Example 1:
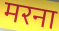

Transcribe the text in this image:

मरना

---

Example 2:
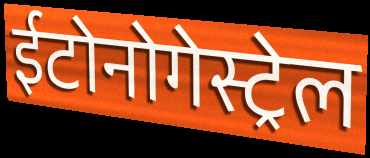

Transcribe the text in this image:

ईटोनोगेस्ट्रेल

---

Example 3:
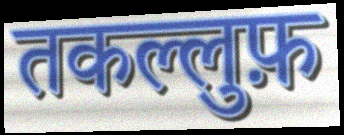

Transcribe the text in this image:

तकल्लुफ़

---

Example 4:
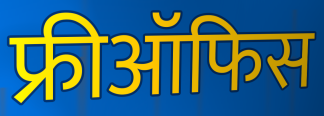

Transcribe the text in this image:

फ्रीऑफिस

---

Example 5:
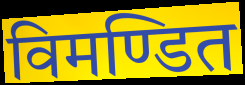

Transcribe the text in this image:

विमण्डित